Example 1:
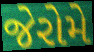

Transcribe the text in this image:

જેરોમે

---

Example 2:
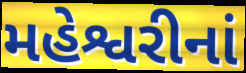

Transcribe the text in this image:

મહેશ્વરીનાં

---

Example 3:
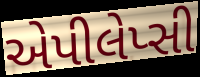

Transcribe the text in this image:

એપીલેપ્સી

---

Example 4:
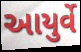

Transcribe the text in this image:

આયુર્વે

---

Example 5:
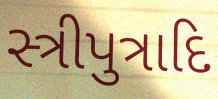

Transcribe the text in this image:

સ્ત્રીપુત્રાદિ